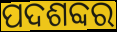
ପଦଶବ୍ଦର